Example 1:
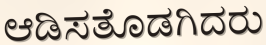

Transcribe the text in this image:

ಆಡಿಸತೊಡಗಿದರು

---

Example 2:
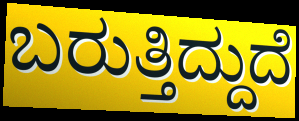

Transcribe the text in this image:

ಬರುತ್ತಿದ್ದುದೆ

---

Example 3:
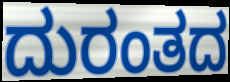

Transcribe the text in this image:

ದುರಂತದ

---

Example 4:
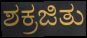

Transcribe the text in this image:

ಶಕ್ರಜಿತು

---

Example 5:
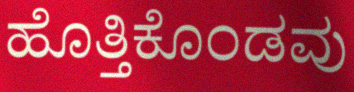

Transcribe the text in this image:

ಹೊತ್ತಿಕೊಂಡವು